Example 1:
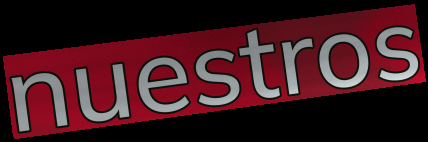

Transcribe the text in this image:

nuestros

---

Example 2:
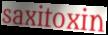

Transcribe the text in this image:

saxitoxin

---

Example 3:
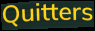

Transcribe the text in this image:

Quitters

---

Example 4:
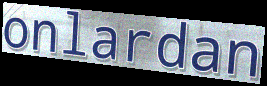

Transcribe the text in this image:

onlardan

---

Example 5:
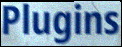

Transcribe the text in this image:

Plugins